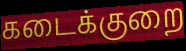
கடைக்குறை